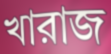
খারাজ